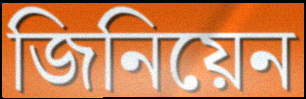
জিনিয়েন